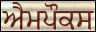
ਐਮਪੌਕਸ